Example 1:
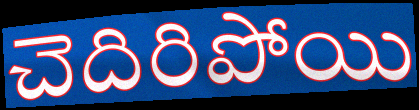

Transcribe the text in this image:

చెదిరిపోయి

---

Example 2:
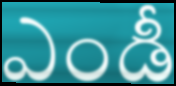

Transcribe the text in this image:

ఎండీ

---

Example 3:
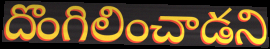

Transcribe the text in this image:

దొంగిలించాడని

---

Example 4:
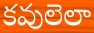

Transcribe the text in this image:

కవులెలా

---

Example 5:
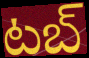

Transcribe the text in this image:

టబ్